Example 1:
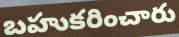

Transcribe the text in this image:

బహుకరించారు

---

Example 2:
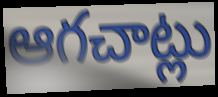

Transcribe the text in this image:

ఆగచాట్లు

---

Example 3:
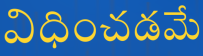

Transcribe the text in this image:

విధించడమే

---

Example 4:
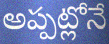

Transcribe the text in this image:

అప్పట్లోనే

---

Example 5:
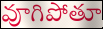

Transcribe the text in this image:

వూగిపోతూ